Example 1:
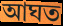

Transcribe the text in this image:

আঘত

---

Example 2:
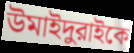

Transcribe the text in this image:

উমাইদুরাইকে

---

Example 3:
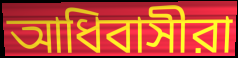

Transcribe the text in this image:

আধিবাসীরা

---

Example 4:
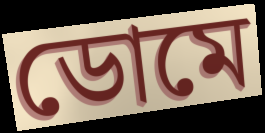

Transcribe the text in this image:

ডোমে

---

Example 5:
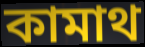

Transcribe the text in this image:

কামাথ